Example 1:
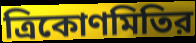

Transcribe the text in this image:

ত্রিকোণমিতির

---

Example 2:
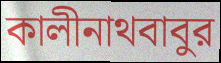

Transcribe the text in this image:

কালীনাথবাবুর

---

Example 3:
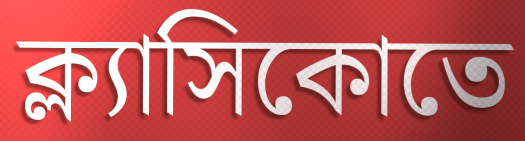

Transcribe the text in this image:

ক্ল্যাসিকোতে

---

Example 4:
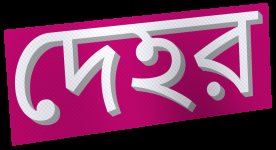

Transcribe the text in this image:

দেহর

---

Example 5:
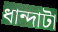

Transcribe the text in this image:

ধান্দাটা